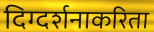
दिग्दर्शनाकरिता